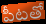
పీటతో